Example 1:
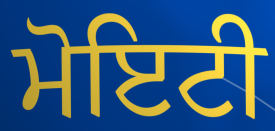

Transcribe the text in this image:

ਮੋਇਟੀ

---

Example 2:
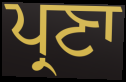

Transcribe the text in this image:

ਪ੍ਰਣਾ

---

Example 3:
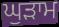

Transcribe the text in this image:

ਘੁੜਾਮ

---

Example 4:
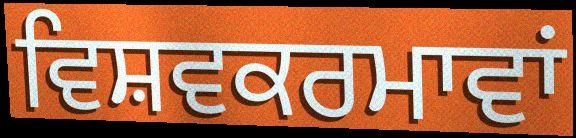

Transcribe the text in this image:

ਵਿਸ਼ਵਕਰਮਾਵਾਂ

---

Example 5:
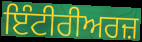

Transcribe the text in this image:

ਇੰਟੀਰੀਅਰਜ਼